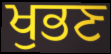
ਖੁਭਣ